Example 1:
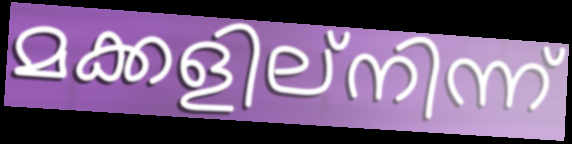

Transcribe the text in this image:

മക്കളില്നിന്ന്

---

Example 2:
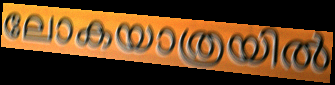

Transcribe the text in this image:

ലോകയാത്രയിൽ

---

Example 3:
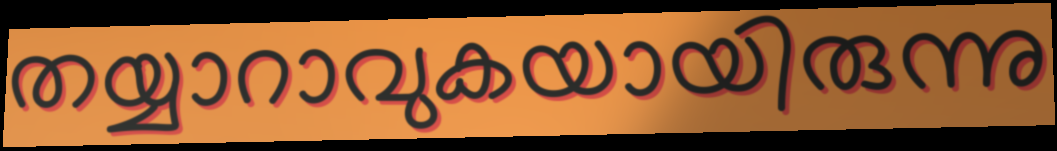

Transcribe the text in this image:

തയ്യാറാവുകയായിരുന്നു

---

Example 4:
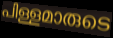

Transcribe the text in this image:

പിള്ളമാരുടെ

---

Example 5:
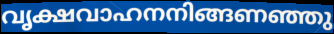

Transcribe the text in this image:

വൃക്ഷവാഹനനിങ്ങണഞ്ഞു